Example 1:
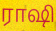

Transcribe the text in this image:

ராஷி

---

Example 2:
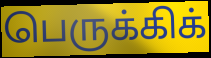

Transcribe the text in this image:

பெருக்கிக்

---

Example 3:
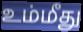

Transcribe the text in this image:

உம்மீது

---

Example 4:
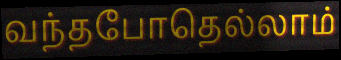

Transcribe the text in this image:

வந்தபோதெல்லாம்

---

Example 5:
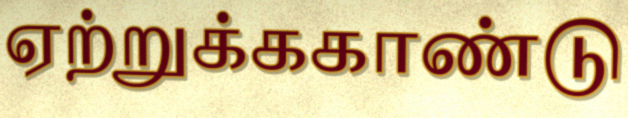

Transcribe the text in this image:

ஏற்றுக்ககாண்டு